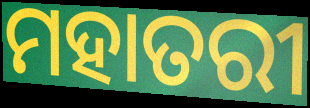
ମହାତରୀ